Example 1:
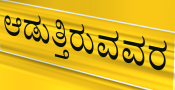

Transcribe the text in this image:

ಆಡುತ್ತಿರುವವರ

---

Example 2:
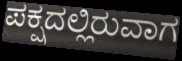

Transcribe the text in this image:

ಪಕ್ಷದಲ್ಲಿರುವಾಗ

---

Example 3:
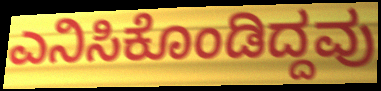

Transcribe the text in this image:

ಎನಿಸಿಕೊಂಡಿದ್ದವು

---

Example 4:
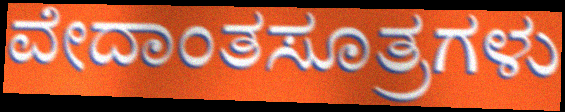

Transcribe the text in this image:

ವೇದಾಂತಸೂತ್ರಗಳು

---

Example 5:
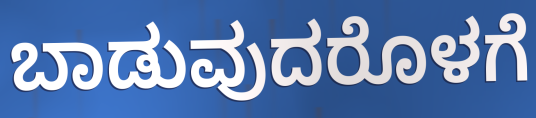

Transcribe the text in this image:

ಬಾಡುವುದರೊಳಗೆ